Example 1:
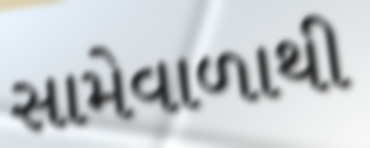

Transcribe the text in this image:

સામેવાળાથી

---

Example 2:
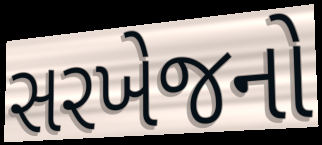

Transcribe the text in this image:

સરખેજનો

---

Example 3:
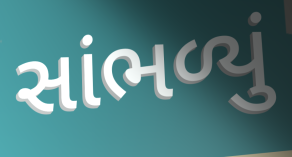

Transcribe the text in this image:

સાંભળ્યું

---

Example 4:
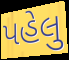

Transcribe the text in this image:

પહેલુ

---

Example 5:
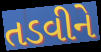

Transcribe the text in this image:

તડવીને